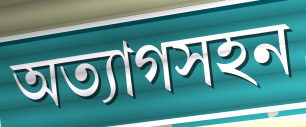
অত্যাগসহন